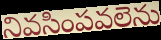
నివసింపవలెను